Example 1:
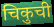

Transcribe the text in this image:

चिकुची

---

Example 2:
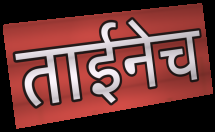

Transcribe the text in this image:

ताईनेच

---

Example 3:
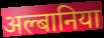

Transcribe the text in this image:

अल्बानिया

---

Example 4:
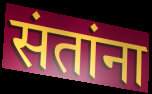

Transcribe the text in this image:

संतांना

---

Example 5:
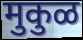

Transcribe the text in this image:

मुकुळ